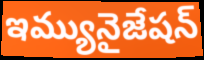
ఇమ్యునైజేషన్